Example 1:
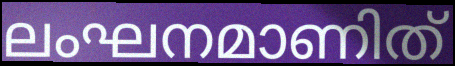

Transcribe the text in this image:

ലംഘനമാണിത്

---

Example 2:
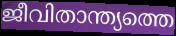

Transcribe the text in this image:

ജീവിതാന്ത്യത്തെ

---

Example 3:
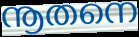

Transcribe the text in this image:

നൂതനെ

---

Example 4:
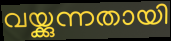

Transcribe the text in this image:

വയ്ക്കുന്നതായി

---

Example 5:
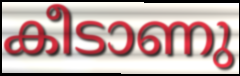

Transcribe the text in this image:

കീടാണു